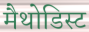
मैथोडिस्ट